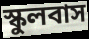
স্কুলবাস